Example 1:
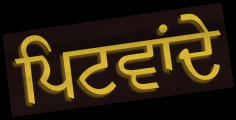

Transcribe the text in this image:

ਪਿਟਵਾਂਦੇ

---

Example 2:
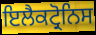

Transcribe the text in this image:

ਇਲੈਕਟ੍ਰੋਨਿਸ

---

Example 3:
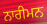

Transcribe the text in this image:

ਨਾਰੀਮਨ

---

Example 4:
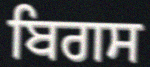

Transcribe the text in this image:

ਬਿਗਸ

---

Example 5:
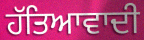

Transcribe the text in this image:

ਹੱਤਿਆਵਾਦੀ